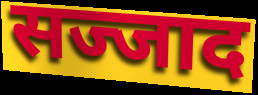
सज्जाद